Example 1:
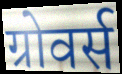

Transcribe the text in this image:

ग्रोवर्स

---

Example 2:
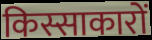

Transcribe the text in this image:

किस्साकारों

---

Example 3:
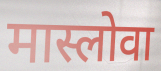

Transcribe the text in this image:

मास्लोवा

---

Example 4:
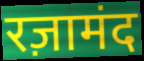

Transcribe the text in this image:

रज़ामंद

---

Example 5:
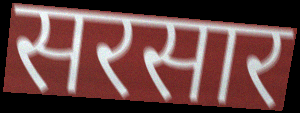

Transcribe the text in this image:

सरसार